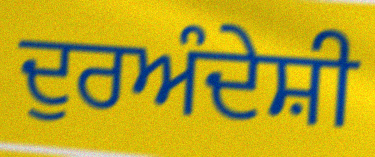
ਦੁਰਅੰਦੇਸ਼ੀ